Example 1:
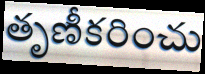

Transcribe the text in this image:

తృణీకరించు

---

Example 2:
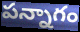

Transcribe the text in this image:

పన్నాగం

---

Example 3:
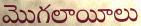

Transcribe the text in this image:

మొగలాయీలు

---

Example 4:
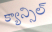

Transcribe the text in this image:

క్యాన్సిల్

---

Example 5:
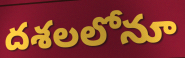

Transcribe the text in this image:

దశలలోనూ